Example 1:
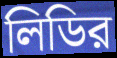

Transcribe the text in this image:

লিডির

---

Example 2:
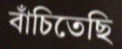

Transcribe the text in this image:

বাঁচিতেছি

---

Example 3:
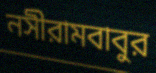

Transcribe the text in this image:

নসীরামবাবুর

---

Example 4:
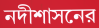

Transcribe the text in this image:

নদীশাসনের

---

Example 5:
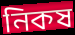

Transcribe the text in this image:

নিকষ